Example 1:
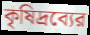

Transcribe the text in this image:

কৃষিদ্রব্যের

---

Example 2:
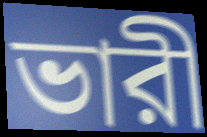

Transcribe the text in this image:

ভারী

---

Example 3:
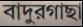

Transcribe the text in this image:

বাদুরগাছা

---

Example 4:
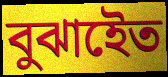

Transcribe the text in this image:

বুঝাইেত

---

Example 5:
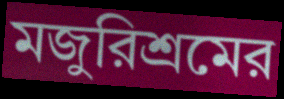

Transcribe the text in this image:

মজুরিশ্রমের